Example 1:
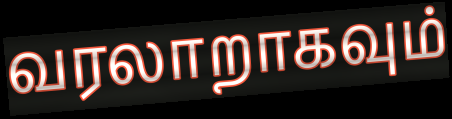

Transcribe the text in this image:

வரலாறாகவும்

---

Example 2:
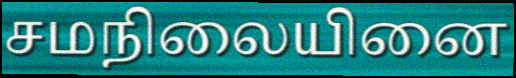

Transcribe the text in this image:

சமநிலையினை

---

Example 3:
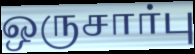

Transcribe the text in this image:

ஒருசார்பு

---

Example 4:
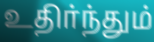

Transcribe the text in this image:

உதிர்ந்தும்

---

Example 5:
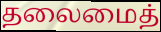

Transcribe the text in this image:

தலைமைத்